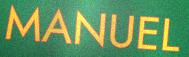
MANUEL